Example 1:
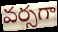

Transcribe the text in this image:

వర్సగా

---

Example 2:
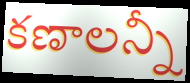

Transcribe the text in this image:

కణాలన్నీ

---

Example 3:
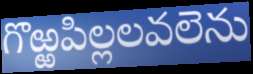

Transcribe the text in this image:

గొఱ్ఱపిల్లలవలెను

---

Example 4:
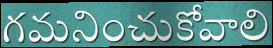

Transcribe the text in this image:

గమనించుకోవాలి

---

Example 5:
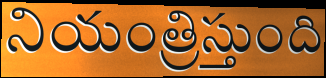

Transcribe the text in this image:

నియంత్రిస్తుంది